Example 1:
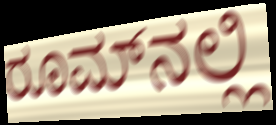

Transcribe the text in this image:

ರೂಮ್‌ನಲ್ಲಿ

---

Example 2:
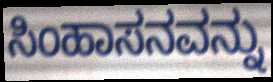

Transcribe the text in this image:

ಸಿಂಹಾಸನವನ್ನು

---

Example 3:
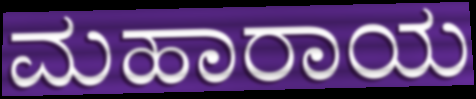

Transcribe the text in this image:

ಮಹಾರಾಯ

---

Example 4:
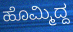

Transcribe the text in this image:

ಹೊಮ್ಮಿದ್ದ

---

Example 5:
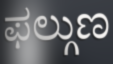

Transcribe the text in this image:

ಫಲ್ಗುಣ